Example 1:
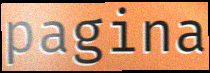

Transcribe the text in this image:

pagina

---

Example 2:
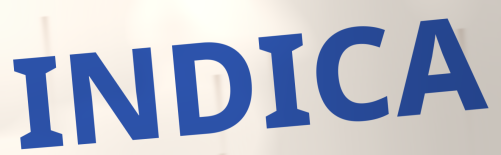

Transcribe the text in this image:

INDICA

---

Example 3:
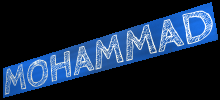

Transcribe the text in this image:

MOHAMMAD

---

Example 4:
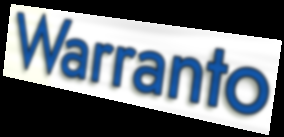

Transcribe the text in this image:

Warranto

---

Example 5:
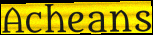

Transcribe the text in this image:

Acheans